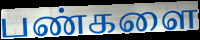
பண்களை